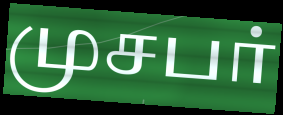
முசபர்